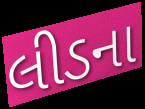
લીડના